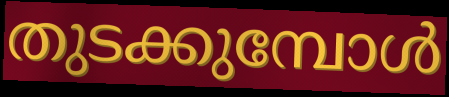
തുടക്കുമ്പോൾ